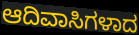
ಆದಿವಾಸಿಗಳಾದ